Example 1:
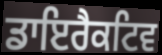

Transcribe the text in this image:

ਡਾਇਰੈਕਟਿਵ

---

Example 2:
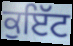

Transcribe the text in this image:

ਕੁਇੱਟ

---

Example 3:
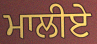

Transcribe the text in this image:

ਮਾਲੀਏ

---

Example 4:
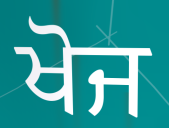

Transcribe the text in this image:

ਖੋਜ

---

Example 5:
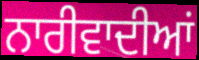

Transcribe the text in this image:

ਨਾਰੀਵਾਦੀਆਂ